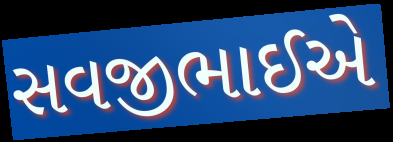
સવજીભાઈએ